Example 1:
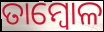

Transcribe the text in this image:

ତାମ୍ବୋଳ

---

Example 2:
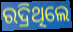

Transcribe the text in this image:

ରଦ୍ରିଥିଲେ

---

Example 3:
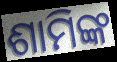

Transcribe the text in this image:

ଶାମିଙ୍କ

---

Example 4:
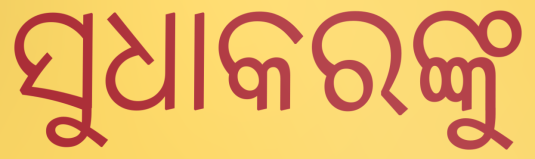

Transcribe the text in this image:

ସୁଧାକରଙ୍କୁ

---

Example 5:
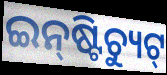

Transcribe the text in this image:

ଇନ୍‌ଷ୍ଟିଚ୍ୟୁଟ୍